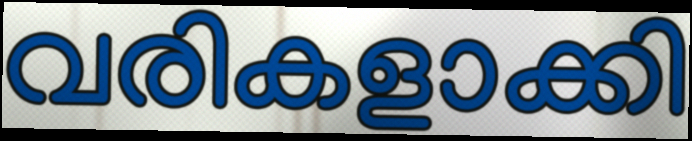
വരികളാക്കി